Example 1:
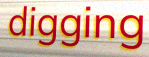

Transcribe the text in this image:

digging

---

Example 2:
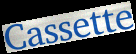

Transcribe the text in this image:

Cassette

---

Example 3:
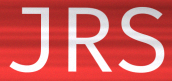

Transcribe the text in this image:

JRS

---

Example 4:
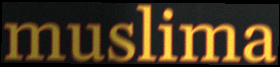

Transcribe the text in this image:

muslima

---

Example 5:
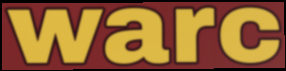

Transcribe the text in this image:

warc